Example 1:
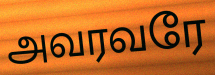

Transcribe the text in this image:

அவரவரே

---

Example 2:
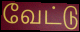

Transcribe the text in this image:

வேட்டு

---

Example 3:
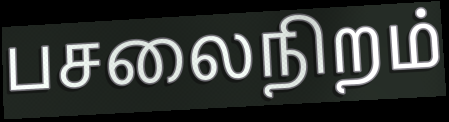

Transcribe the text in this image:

பசலைநிறம்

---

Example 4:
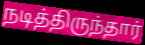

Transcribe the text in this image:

நடித்திருந்தார்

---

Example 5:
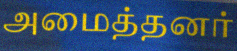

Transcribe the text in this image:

அமைத்தனர்